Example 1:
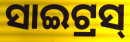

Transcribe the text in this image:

ସାଇଟ୍ରସ୍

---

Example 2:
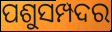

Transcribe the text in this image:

ପଶୁସମ୍ପଦର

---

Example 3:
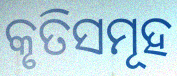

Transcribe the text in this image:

କୃତିସମୂହ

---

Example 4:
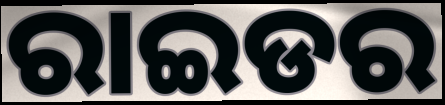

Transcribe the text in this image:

ରାଇଡର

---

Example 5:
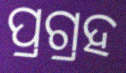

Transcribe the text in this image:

ପ୍ରଗ୍ରହ